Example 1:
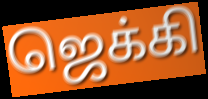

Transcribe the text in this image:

ஜெக்கி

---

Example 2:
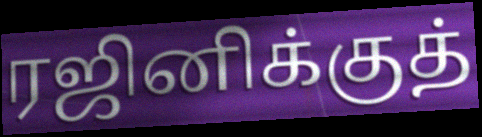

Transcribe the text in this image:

ரஜினிக்குத்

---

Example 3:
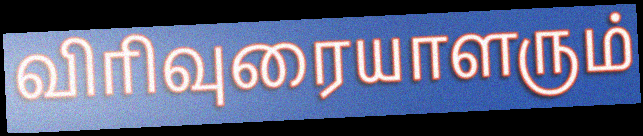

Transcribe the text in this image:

விரிவுரையாளரும்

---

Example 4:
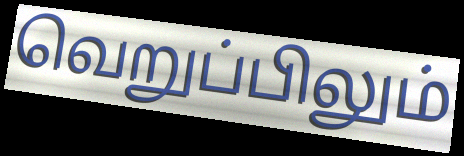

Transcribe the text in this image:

வெறுப்பிலும்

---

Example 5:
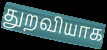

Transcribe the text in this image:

துறவியாக